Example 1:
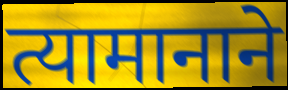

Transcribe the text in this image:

त्यामानाने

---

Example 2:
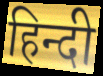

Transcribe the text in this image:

हिन्दी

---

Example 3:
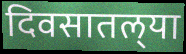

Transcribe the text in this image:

दिवसातल्या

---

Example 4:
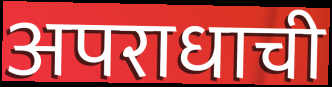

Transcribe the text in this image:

अपराधाची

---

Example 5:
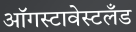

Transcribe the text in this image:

ऑगस्टावेस्टलँड